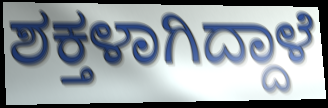
ಶಕ್ತಳಾಗಿದ್ದಾಳೆ